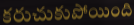
కరుచుకుపోయింది